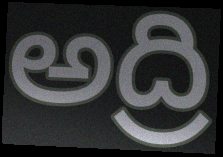
అద్రి